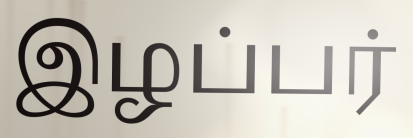
இழப்பர்